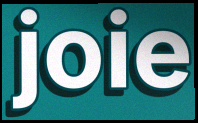
joie